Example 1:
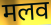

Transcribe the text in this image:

मलव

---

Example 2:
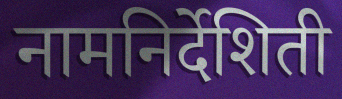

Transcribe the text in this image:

नामनिर्देशिती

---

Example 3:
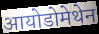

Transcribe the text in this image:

आयोडोमेथेन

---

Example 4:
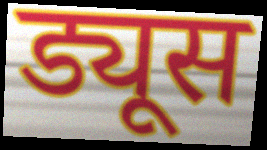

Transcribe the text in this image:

ड्यूस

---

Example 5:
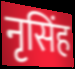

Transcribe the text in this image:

नृसिंह